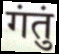
गंतुं